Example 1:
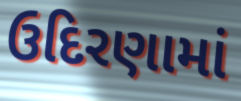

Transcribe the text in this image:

ઉદિરણામાં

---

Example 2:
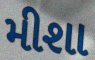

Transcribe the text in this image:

મીશા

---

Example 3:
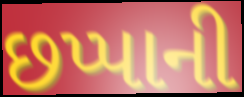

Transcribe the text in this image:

છપ્પાની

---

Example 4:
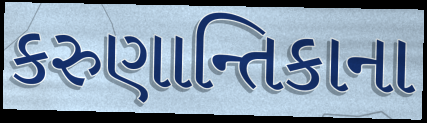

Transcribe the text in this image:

કરુણાન્તિકાના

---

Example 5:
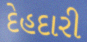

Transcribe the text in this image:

દેહદારી